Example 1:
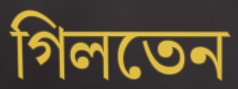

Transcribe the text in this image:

গিলতেন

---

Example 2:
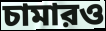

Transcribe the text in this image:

চামারও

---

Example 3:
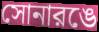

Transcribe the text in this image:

সোনারঙে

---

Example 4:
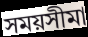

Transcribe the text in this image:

সময়সীমা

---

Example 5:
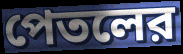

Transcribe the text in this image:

পেতলের